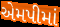
એમપીમાં